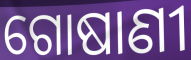
ଗୋଷାଣୀ